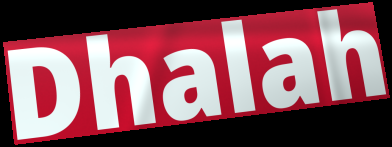
Dhalah